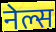
नेल्स